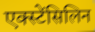
एक्स्टेंसिलिन